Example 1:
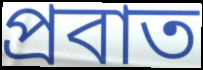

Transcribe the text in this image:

প্রবাত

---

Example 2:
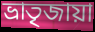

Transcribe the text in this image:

ভ্রাতৃজায়া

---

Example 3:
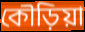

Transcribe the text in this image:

কৌড়িয়া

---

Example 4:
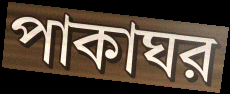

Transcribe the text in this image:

পাকাঘর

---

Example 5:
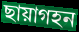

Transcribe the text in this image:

ছায়াগহন